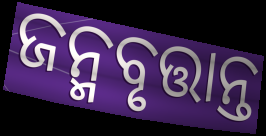
ଜନ୍ମବୃତ୍ତାନ୍ତ